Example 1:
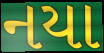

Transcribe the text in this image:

નયા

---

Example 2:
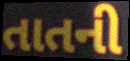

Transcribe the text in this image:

તાતની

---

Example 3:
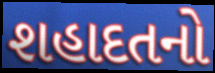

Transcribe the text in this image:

શહાદતનો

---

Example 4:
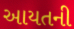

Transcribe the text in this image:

આયતની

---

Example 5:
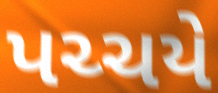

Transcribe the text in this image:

પચ્ચયે